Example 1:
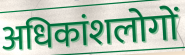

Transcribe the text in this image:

अधिकांशलोगों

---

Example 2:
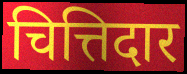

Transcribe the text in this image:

चित्तिदार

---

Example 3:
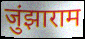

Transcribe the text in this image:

जुंझाराम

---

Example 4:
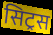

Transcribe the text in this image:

सिट्रस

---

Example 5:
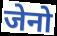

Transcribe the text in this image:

जेनो